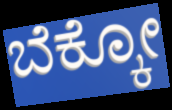
ಬೆಕ್ಕೋ